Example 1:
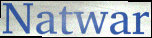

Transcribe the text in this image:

Natwar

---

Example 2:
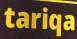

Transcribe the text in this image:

tariqa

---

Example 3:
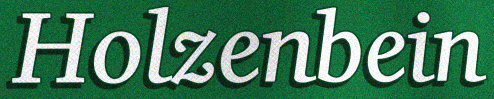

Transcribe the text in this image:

Holzenbein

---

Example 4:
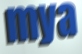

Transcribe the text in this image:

mya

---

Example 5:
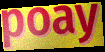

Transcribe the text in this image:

poay